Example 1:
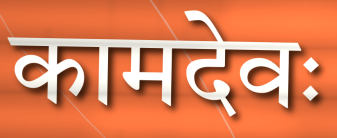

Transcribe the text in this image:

कामदेवः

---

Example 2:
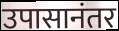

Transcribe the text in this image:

उपासानंतर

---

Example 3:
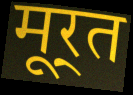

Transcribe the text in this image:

मूर्त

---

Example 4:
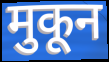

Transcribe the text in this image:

मुकून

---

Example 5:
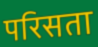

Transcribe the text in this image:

परिसता